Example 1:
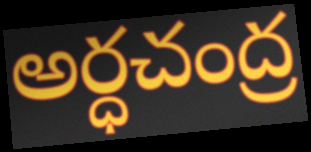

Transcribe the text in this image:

అర్ధచంద్ర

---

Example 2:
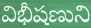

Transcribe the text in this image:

విభీషణుని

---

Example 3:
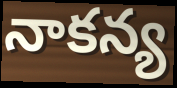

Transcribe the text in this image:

నాకన్య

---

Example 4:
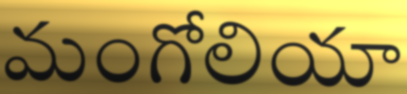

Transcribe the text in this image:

మంగోలియా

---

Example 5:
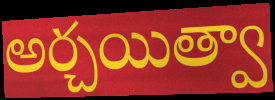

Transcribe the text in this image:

అర్చయిత్వా